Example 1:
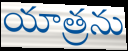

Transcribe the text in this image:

యాత్రను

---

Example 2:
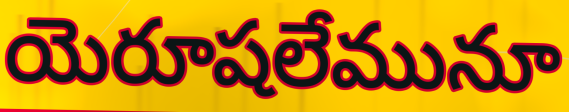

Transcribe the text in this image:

యెరూషలేమునూ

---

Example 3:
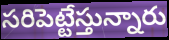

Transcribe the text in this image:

సరిపెట్టేస్తున్నారు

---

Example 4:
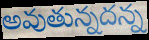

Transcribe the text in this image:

అవుతున్నదన్న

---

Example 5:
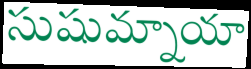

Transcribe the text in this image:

సుషుమ్నాయా